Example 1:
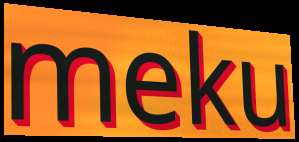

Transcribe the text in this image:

meku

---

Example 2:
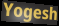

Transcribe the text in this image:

Yogesh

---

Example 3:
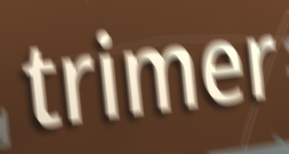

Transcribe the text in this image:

trimer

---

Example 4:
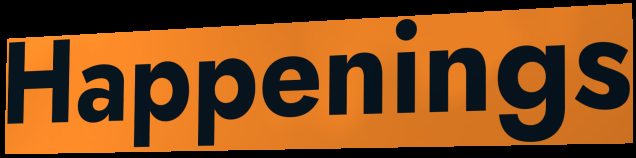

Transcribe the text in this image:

Happenings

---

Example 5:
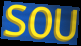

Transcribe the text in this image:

SOU